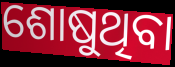
ଶୋଷୁଥିବା